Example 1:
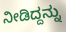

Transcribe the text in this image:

ನೀಡಿದ್ದನ್ನು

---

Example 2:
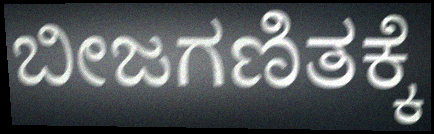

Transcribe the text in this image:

ಬೀಜಗಣಿತಕ್ಕೆ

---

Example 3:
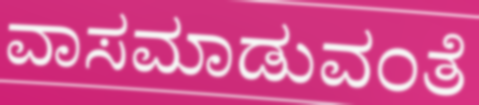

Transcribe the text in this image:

ವಾಸಮಾಡುವಂತೆ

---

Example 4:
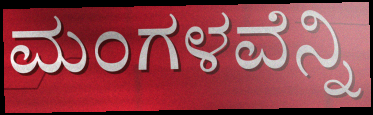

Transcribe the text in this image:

ಮಂಗಳವೆನ್ನಿ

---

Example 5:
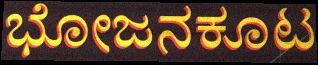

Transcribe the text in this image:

ಭೋಜನಕೂಟ